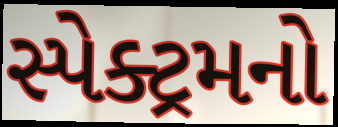
સ્પેક્ટ્રમનો